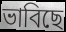
ভাবিছে